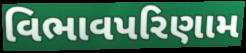
વિભાવપરિણામ